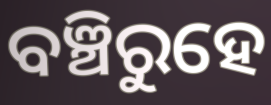
ବଞ୍ଚିରୁହେ